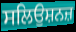
ਸਲਿਉਸ਼ਨਜ਼